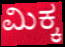
ಮಿಕ್ಕ